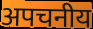
अपचनीय